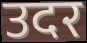
उदर